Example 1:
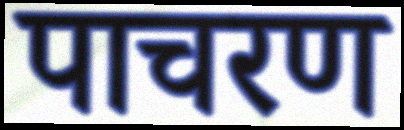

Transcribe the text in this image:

पाचरण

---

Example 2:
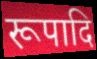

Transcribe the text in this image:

रूपादि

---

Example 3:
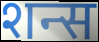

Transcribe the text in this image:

शन्स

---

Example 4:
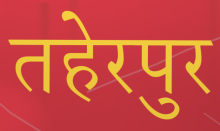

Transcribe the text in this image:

तहेरपुर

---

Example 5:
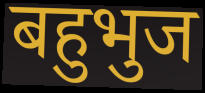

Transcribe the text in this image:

बहुभुज